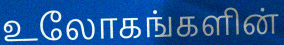
உலோகங்களின்